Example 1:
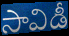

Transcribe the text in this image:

సావిడీ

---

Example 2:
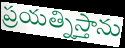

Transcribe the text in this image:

ప్రయత్నిస్తాను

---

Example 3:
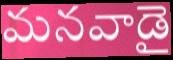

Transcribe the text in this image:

మనవాడై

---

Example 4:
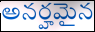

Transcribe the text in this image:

అనర్హమైన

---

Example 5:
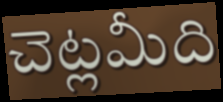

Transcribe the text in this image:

చెట్లమీది